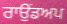
ਰਾਉਂਡਅਪ